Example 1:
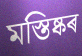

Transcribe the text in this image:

মস্তিষ্কৰ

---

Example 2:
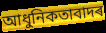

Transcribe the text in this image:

আধুনিকতাবাদৰ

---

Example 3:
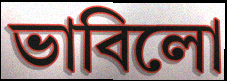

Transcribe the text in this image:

ভাবিলো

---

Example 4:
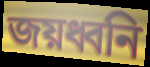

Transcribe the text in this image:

জয়ধ্বনি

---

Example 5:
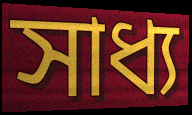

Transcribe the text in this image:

সাধ্য